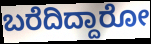
ಬರೆದಿದ್ದಾರೋ